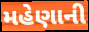
મહેણાની